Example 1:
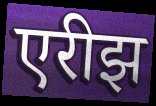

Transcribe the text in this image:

एरीझ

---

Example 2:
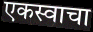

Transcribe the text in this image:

एकस्वाचा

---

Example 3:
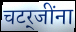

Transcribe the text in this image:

चटर्जींना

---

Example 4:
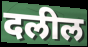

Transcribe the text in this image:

दलील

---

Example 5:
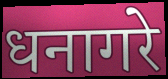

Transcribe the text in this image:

धनागरे